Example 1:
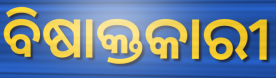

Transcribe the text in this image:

ବିଷାକ୍ତକାରୀ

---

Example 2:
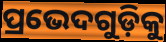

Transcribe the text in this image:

ପ୍ରଭେଦଗୁଡ଼ିକୁ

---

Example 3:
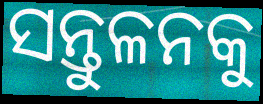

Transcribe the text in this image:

ସନ୍ତୁଳନକୁ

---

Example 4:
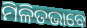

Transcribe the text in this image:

ମିଳିତଭାବେ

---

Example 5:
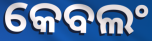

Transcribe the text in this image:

କେବଲଂ